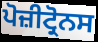
ਪੋਜ਼ੀਟ੍ਰੋਨਸ